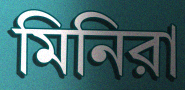
মিনিরা